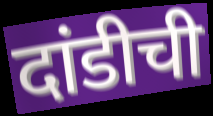
दांडीची